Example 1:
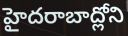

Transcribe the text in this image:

హైదరాబాద్లోని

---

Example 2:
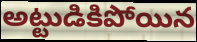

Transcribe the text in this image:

అట్టుడికిపోయిన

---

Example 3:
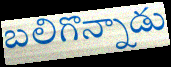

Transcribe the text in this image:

బలిగొన్నాడు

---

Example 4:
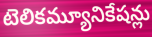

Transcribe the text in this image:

టెలికమ్యూనికేషన్లు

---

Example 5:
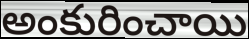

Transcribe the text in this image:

అంకురించాయి